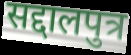
सद्दालपुत्र